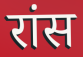
रांस